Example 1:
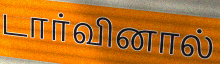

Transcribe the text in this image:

டார்வினால்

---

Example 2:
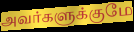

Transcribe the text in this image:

அவர்களுக்குமே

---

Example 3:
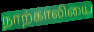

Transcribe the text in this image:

நாற்காலியை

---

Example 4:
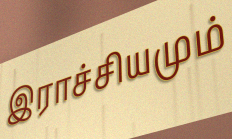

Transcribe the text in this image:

இராச்சியமும்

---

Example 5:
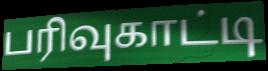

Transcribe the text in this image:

பரிவுகாட்டி